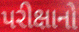
પરીક્ષાનો